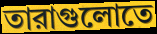
তারাগুলোতে